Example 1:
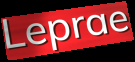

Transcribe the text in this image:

Leprae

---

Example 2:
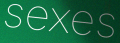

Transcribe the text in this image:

sexes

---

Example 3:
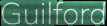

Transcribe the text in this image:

Guilford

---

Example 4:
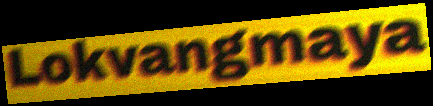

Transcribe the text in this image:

Lokvangmaya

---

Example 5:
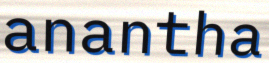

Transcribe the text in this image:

anantha